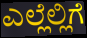
ಎಲ್ಲೆಲ್ಲಿಗೆ